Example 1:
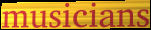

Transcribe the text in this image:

musicians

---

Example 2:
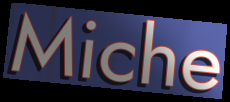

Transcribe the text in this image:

Miche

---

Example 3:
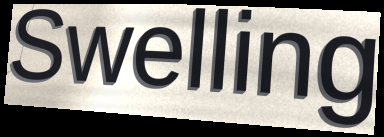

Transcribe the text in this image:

Swelling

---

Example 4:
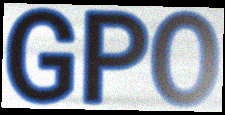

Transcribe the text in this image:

GPO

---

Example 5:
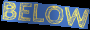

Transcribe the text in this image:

BELOW